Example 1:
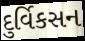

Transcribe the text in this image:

દુર્વિકસન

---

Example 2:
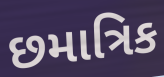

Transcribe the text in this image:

છમાત્રિક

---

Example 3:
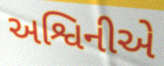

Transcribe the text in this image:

અશ્વિનીએ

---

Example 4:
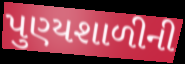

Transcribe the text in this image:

પુણ્યશાળીની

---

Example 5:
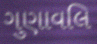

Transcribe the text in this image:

ગુણાવલિ